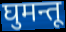
घुमन्तू